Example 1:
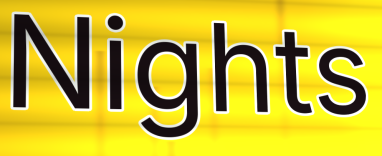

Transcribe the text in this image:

Nights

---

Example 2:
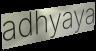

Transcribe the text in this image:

adhyaya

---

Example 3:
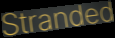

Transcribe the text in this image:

Stranded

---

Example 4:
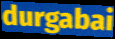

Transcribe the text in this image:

durgabai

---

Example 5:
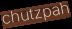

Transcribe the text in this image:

chutzpah